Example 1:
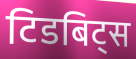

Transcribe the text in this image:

टिडबिट्स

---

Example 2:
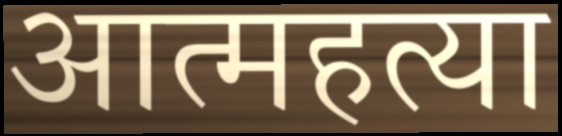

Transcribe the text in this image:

आत्महत्या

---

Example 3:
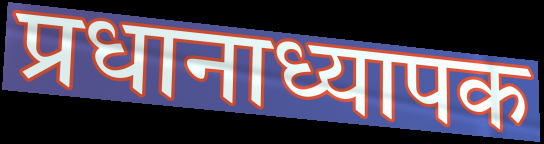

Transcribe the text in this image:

प्रधानाध्यापक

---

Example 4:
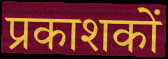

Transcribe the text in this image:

प्रकाशकों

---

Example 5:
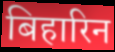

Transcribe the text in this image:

बिहारिन